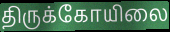
திருக்கோயிலை